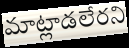
మాట్లాడలేరని